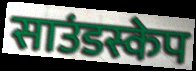
साउंडस्केप